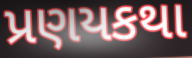
પ્રણયકથા